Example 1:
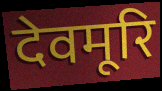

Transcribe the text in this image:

देवमूरि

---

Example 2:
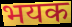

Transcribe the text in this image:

भयक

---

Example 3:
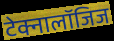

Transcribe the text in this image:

टेक्नालॉजिज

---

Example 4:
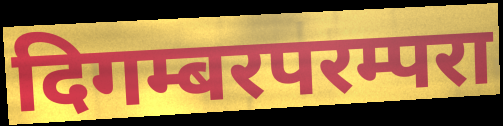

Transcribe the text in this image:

दिगम्बरपरम्परा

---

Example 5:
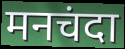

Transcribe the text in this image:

मनचंदा